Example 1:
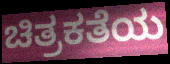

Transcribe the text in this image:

ಚಿತ್ರಕತೆಯ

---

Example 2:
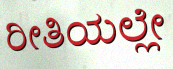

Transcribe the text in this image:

ರೀತಿಯಲ್ಲೇ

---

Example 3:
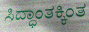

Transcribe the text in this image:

ಸಿದ್ಧಾಂತಕ್ಕಿಂತ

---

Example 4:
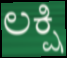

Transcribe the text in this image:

ಲಕ್ಷಿ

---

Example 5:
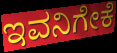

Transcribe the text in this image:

ಇವನಿಗೇಕೆ